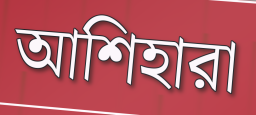
আশিহারা